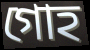
গোহ